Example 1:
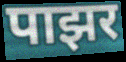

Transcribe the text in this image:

पाझर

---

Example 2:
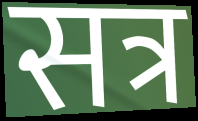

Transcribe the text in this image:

सत्र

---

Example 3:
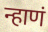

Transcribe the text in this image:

न्हाणं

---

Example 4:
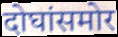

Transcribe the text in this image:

दोघांसमोर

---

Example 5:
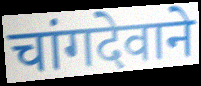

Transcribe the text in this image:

चांगदेवाने